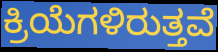
ಕ್ರಿಯೆಗಳಿರುತ್ತವೆ